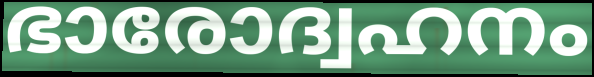
ഭാരോദ്വഹനം